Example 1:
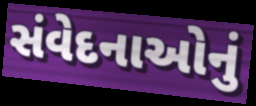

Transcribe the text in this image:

સંવેદનાઓનું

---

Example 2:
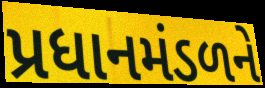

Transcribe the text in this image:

પ્રધાનમંડળને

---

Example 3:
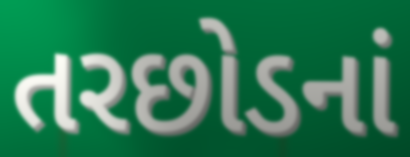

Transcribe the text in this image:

તરછોડનાં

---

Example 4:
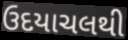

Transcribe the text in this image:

ઉદયાચલથી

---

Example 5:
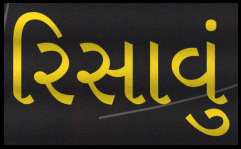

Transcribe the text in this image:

રિસાવું